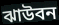
ঝাউবন